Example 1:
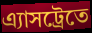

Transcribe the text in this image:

এ্যাসট্রেতে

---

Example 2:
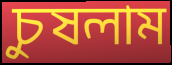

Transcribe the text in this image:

চুষলাম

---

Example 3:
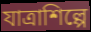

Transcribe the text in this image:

যাত্রাশিল্পে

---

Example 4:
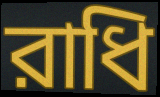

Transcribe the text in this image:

রাধি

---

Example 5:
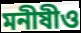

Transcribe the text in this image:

মনীষীও